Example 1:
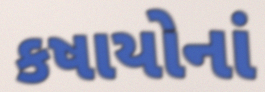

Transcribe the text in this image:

કષાયોનાં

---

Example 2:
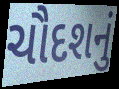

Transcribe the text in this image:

ચૌદશનું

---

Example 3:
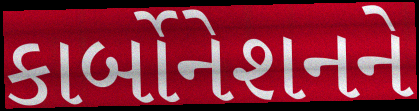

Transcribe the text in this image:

કાર્બોનેશનને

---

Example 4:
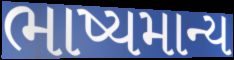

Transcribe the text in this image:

ભાષ્યમાન્ય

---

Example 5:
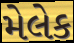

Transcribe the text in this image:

મેલેક